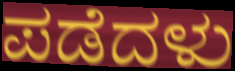
ಪಡೆದಳು